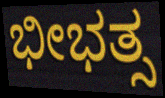
ಭೀಭತ್ಸ